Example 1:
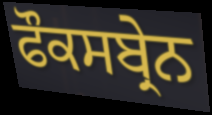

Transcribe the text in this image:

ਫੌਕਸਬ੍ਰੇਨ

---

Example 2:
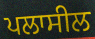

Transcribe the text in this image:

ਪਲਾਸੀਲ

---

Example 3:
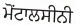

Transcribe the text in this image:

ਮੋਂਟਾਲਸੀਨੀ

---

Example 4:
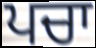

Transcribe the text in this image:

ਪਚਾ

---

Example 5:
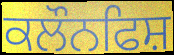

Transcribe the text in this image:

ਕਲੌਨਫਿਸ਼